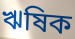
ঋষিক